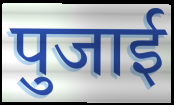
पुजाई